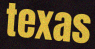
texas